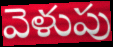
వెళుపు